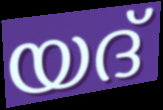
യദ്